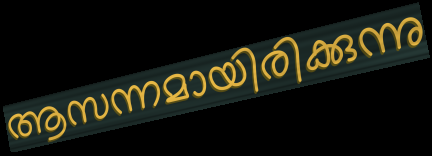
ആസന്നമായിരിക്കുന്നു